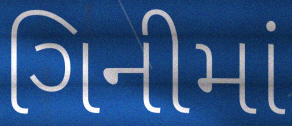
ગિનીમાં